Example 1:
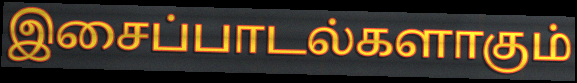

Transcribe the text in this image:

இசைப்பாடல்களாகும்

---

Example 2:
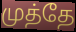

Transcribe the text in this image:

முத்தே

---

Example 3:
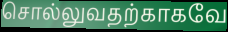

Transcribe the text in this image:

சொல்லுவதற்காகவே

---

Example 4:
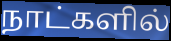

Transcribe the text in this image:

நாட்களில்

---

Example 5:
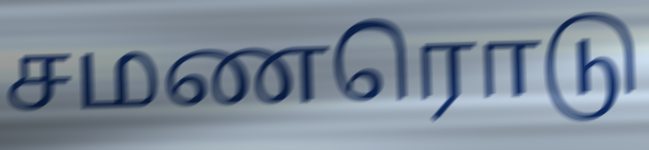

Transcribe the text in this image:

சமணரொடு